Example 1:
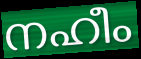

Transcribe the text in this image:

നഹീം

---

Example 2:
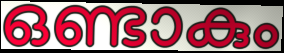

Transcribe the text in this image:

ഒണ്ടാകും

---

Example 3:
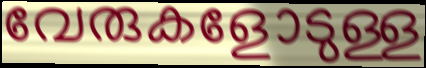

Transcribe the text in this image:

വേരുകളോടുള്ള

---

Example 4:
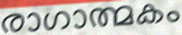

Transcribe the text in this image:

രാഗാത്മകം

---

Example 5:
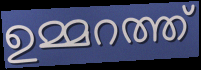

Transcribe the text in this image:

ഉമ്മറത്ത്